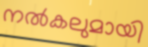
നൽകലുമായി